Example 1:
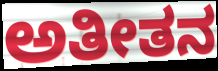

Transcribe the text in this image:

ಅತೀತನ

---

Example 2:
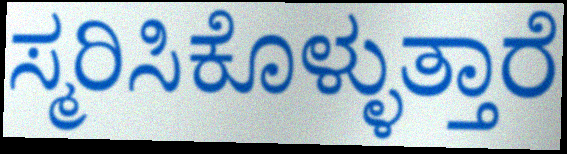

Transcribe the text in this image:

ಸ್ಮರಿಸಿಕೊಳ್ಳುತ್ತಾರೆ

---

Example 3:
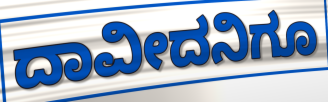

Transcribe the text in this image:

ದಾವೀದನಿಗೂ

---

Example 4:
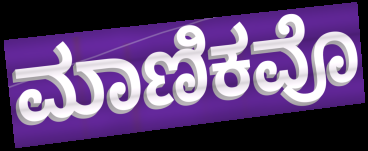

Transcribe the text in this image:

ಮಾಣಿಕವೊ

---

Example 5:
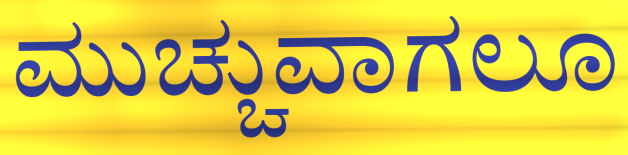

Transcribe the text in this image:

ಮುಚ್ಚುವಾಗಲೂ